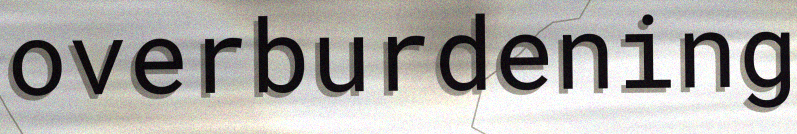
overburdening